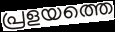
പ്രളയത്തെ